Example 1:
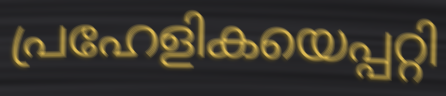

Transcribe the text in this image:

പ്രഹേളികയെപ്പറ്റി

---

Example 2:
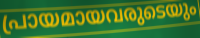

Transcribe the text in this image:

പ്രായമായവരുടെയും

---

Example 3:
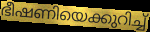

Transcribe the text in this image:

ഭീഷണിയെക്കുറിച്ച്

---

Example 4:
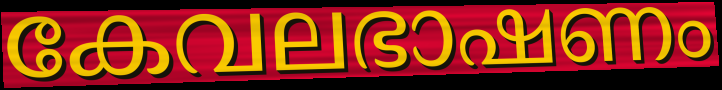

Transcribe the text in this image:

കേവലഭാഷണം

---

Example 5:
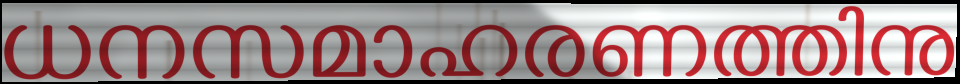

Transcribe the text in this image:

ധനസമാഹരണത്തിനു